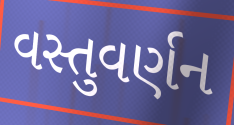
વસ્તુવર્ણન